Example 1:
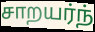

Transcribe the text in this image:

சாறயர்ந்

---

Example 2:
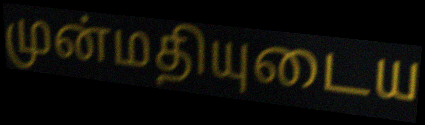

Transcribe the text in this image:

முன்மதியுடைய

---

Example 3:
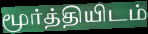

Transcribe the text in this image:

மூர்த்தியிடம்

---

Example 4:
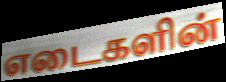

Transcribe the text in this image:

எடைகளின்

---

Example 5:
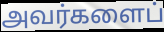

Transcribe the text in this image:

அவர்களைப்